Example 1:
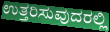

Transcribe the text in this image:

ಉತ್ತರಿಸುವುದರಲ್ಲಿ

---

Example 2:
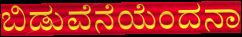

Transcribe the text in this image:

ಬಿಡುವೆನೆಯೆಂದನಾ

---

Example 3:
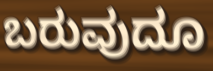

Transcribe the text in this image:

ಬರುವುದೂ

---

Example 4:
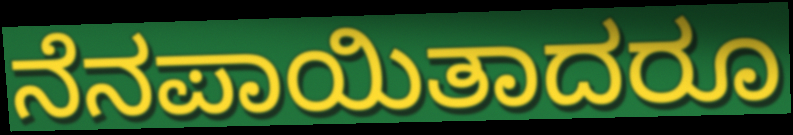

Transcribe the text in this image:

ನೆನಪಾಯಿತಾದರೂ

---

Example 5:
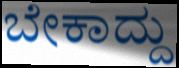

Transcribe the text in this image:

ಬೇಕಾದ್ದು